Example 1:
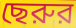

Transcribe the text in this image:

ছেরুর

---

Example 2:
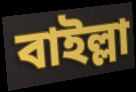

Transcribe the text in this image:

বাইল্লা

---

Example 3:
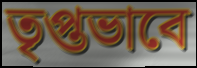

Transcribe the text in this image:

তৃপ্তভাবে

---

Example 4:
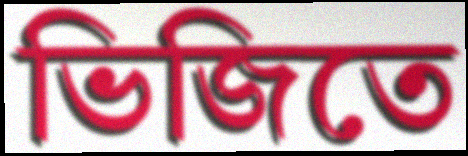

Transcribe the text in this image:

ভিজিতে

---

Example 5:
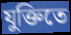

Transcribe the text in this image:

যুক্তিতে